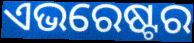
ଏଭରେଷ୍ଟର